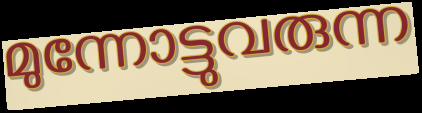
മുന്നോട്ടുവരുന്ന